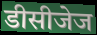
डीसीजेज